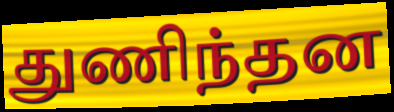
துணிந்தன